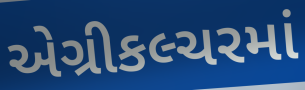
એગ્રીકલ્ચરમાં